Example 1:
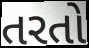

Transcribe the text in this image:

તરતો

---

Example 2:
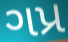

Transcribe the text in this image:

ગપ્ર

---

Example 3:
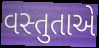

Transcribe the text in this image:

વસ્તુતાએ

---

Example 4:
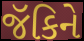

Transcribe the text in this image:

જૅકિને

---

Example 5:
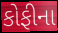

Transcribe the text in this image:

કોફીના